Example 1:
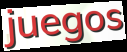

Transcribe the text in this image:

juegos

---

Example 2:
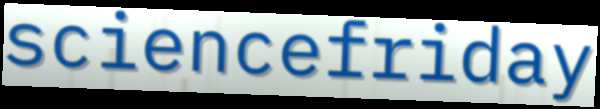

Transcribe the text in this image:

sciencefriday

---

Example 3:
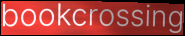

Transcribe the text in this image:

bookcrossing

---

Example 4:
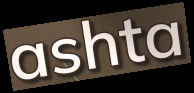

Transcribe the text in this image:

ashta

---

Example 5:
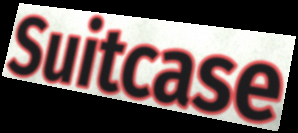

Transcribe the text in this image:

Suitcase